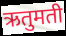
ऋतुमती